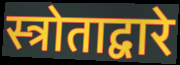
स्त्रोताद्वारे